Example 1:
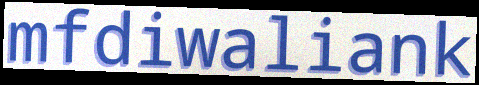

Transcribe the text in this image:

mfdiwaliank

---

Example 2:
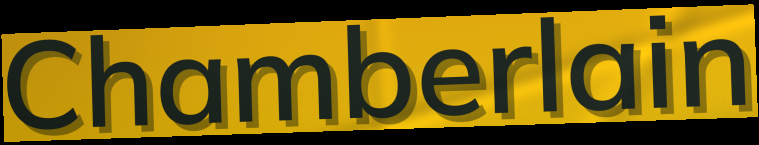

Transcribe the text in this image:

Chamberlain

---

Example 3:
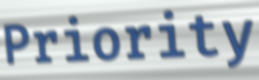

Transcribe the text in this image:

Priority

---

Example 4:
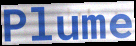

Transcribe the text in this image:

Plume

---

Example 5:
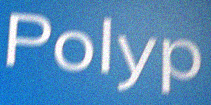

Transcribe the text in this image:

Polyp